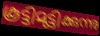
കൂട്ടിമുട്ടിക്കുന്നു